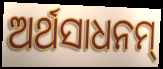
ଅର୍ଥସାଧନମ୍